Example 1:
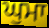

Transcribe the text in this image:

ਘੁਮਾ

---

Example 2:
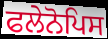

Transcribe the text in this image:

ਫਲੇਨੋਪਿਸ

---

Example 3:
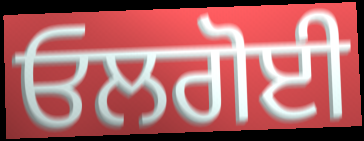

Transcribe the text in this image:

ਓਲਗੋਈ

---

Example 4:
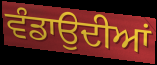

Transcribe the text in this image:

ਵੰਡਾਉਦੀਆਂ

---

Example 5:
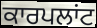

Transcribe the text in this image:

ਕਾਰਪਲਾਂਟ